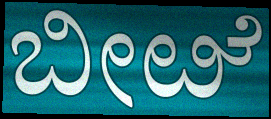
ಬೀೞೆ